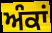
ਅੰਕਾਂ